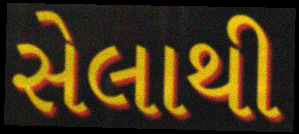
સેલાથી